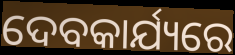
ଦେବକାର୍ଯ୍ୟରେ